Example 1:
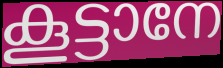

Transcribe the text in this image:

കൂട്ടാനേ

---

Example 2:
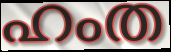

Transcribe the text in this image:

ഹംത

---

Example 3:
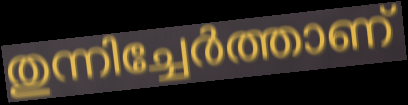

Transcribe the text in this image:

തുന്നിച്ചേർത്താണ്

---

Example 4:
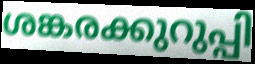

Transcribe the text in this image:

ശങ്കരക്കുറുപ്പി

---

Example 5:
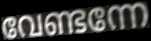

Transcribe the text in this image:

വേണ്ടന്നേ